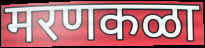
मरणकळा